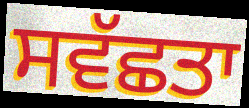
ਸਵੱਛਤਾ